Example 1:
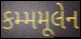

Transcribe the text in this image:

કમ્મમૂલેન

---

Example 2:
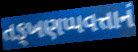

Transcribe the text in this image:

તઙ્ખણપ્પવત્તાનં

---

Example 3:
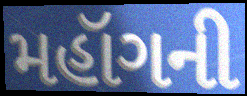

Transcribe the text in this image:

મહૉગની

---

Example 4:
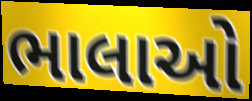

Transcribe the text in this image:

ભાલાઓ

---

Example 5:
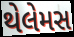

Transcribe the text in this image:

થેલેમસ